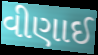
વીણાઈ